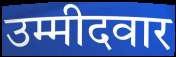
उम्मीदवार